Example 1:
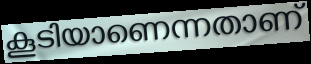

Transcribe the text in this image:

കൂടിയാണെന്നതാണ്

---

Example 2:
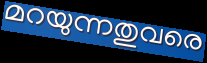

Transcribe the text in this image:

മറയുന്നതുവരെ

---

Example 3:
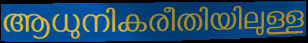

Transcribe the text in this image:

ആധുനികരീതിയിലുള്ള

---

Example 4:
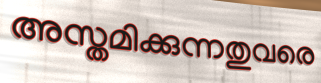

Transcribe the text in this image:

അസ്തമിക്കുന്നതുവരെ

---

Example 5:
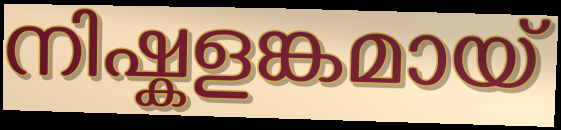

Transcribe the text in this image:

നിഷ്കളങ്കമായ്